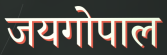
जयगोपाल